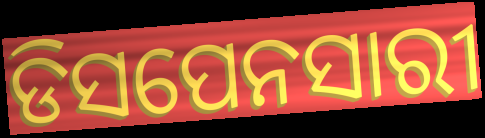
ଡିସପେନସାରୀ